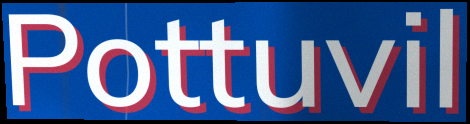
Pottuvil